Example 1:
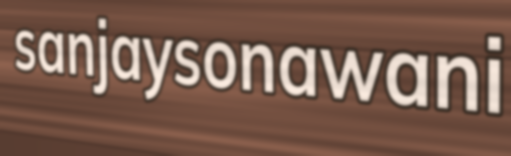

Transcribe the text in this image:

sanjaysonawani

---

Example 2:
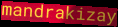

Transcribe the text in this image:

mandrakizay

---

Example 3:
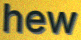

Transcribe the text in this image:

hew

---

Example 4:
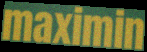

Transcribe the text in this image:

maximin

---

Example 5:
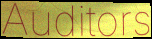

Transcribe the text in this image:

Auditors